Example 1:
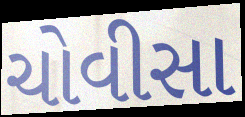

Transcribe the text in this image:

ચોવીસા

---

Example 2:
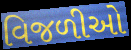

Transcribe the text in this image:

વિજળીઓ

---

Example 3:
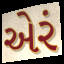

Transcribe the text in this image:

એરં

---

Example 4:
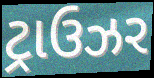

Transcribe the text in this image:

ટ્રાઉઝર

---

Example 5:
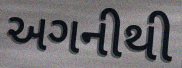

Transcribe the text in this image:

અગનીથી